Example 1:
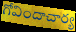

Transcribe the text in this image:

గోవిందాచార్య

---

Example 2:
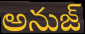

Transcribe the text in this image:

అనుజ్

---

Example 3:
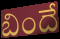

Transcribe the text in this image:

బిందే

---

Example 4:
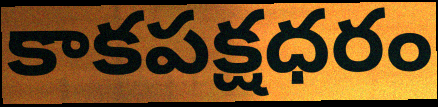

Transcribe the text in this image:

కాకపక్షధరం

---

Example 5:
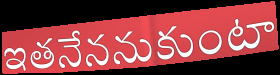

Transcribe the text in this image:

ఇతనేననుకుంటా